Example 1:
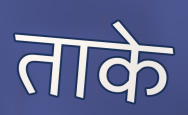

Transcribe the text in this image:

ताके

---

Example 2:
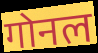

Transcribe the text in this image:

गोनल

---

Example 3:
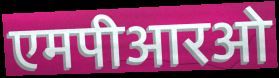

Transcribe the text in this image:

एमपीआरओ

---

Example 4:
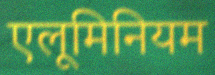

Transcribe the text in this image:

एलूमिनियम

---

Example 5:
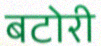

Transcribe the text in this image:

बटोरी